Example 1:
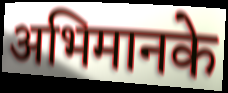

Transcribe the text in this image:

अभिमानके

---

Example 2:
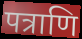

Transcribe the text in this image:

पत्राणि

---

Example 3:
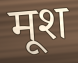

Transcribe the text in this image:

मूश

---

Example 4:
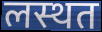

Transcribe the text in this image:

लस्थत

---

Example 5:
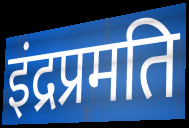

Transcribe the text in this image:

इंद्रप्रमति